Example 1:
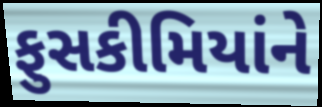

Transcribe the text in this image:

ફુસકીમિયાંને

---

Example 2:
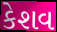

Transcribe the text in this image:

કેશવ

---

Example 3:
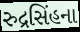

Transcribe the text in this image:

રુદ્રસિંહના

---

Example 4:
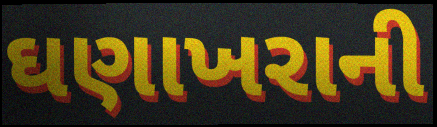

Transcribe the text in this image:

ઘણાખરાની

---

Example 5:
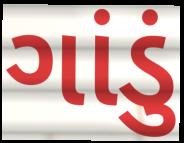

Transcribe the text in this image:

ગાંડું